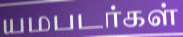
யமபடர்கள்